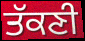
ਤੱਕਣੀ